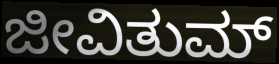
ಜೀವಿತುಮ್